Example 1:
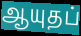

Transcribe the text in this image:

ஆயுதப்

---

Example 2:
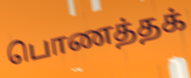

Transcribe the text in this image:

பொணத்தக்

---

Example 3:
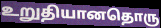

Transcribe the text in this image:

உறுதியானதொரு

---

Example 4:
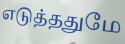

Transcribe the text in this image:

எடுத்ததுமே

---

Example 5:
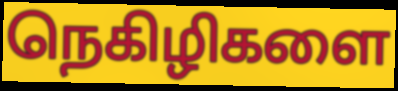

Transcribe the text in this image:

நெகிழிகளை